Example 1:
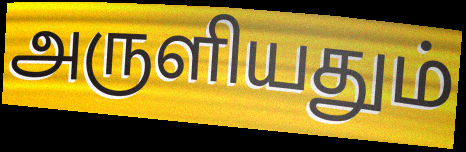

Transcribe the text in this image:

அருளியதும்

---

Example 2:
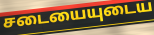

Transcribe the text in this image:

சடையையுடைய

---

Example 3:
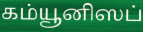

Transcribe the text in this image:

கம்யூனிஸப்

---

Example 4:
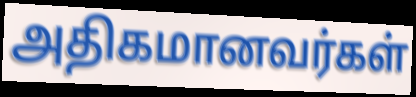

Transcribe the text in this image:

அதிகமானவர்கள்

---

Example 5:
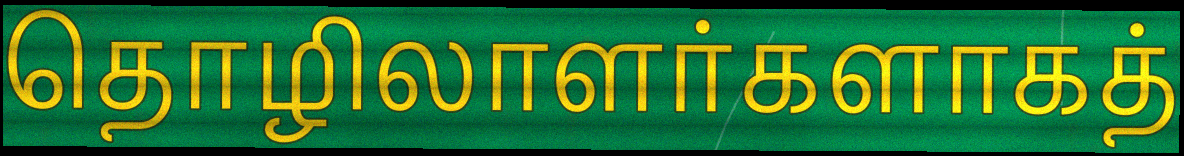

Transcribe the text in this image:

தொழிலாளர்களாகத்